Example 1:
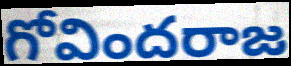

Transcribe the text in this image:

గోవిందరాజ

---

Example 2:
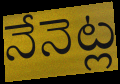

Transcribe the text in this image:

నేనెట్ల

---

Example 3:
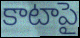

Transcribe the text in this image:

కాటాపై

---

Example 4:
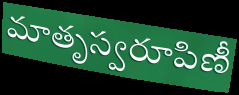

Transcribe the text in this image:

మాతృస్వరూపిణీ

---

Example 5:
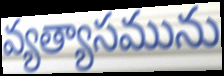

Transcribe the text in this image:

వ్యత్యాసమును